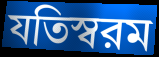
যতিস্বরম